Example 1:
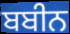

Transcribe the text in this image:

ਬਬੀਨ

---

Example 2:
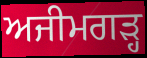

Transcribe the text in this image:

ਅਜੀਮਗੜ੍ਹ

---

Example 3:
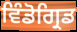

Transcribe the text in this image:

ਵਿੰਡੋਗ੍ਰਿਡ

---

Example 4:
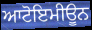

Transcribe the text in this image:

ਆਟੋਇਮੀਊਨ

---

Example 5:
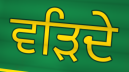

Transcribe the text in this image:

ਵੜਿਦੇ